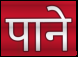
पाने